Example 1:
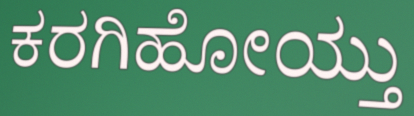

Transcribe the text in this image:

ಕರಗಿಹೋಯ್ತು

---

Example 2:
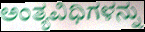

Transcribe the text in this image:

ಅಂತ್ಯವಿಧಿಗಳನ್ನು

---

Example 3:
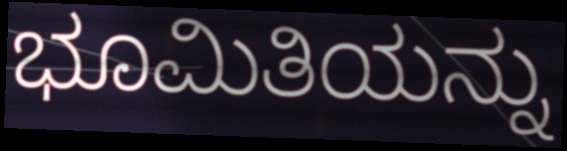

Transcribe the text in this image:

ಭೂಮಿತಿಯನ್ನು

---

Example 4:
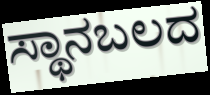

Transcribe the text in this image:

ಸ್ಥಾನಬಲದ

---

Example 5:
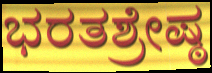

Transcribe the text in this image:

ಭರತಶ್ರೇಷ್ಠ